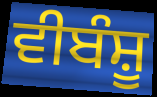
ਵੀਬੰਸ਼ੂ